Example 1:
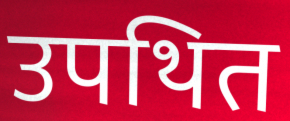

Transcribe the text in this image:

उपथित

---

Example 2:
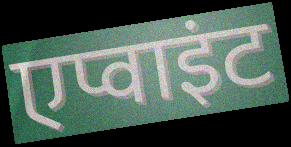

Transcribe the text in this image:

एप्वाइंट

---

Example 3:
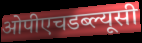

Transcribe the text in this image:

ओपीएचडब्ल्यूसी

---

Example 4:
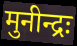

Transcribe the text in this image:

मुनीन्द्रः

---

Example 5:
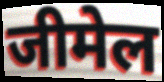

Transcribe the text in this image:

जीमेल